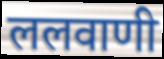
ललवाणी